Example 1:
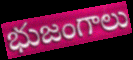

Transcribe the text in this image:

భుజంగాలు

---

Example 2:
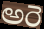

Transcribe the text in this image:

అరె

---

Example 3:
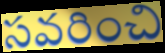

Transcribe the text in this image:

సవరించి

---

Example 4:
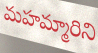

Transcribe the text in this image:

మహమ్మారిని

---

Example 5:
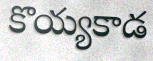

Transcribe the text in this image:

కొయ్యకాడ